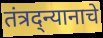
तंत्रद्न्यानाचे